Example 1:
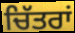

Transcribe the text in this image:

ਚਿੱਤਰਾਂ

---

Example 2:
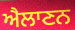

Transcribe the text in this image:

ਐਲਾਣਨ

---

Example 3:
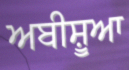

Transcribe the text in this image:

ਅਬੀਸ਼ੂਆ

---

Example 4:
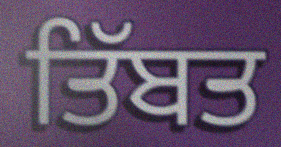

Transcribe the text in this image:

ਤਿੱਬਤ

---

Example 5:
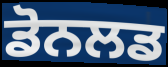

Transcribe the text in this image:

ਡੋਨਲਡ